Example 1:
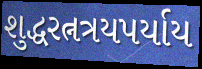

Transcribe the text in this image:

શુદ્ધરત્નત્રયપર્યાય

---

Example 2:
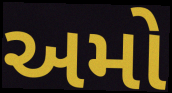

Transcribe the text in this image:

અમો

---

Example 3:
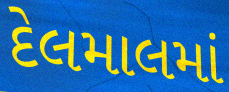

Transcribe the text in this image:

દેલમાલમાં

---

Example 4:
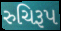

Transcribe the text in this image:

રુચિરૂપ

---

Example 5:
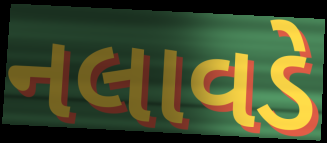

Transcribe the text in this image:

નલાવડે